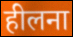
हीलना